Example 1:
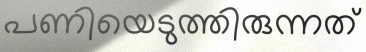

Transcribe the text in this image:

പണിയെടുത്തിരുന്നത്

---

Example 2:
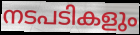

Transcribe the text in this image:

നടപടികളും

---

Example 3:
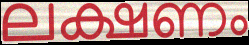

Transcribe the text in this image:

ലക്ഷണം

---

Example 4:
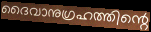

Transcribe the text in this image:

ദൈവാനുഗ്രഹത്തിന്റെ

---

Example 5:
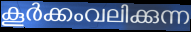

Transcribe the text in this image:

കൂർക്കംവലിക്കുന്ന